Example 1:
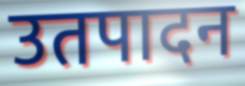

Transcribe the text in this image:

उतपादन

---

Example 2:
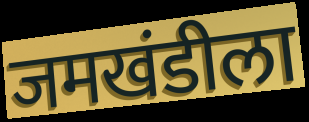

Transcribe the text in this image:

जमखंडीला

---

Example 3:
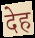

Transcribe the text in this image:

देह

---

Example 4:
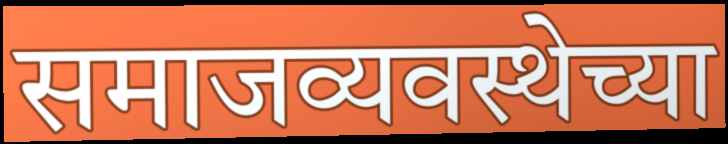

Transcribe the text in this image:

समाजव्यवस्थेच्या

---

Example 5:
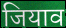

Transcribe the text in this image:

जियाव